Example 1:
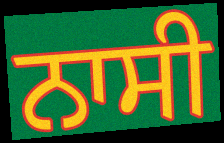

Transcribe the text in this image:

ਨਾਸੀ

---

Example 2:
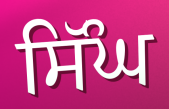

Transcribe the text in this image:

ਸਿੱੰਘ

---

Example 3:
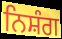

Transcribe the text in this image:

ਨਿਸ਼ੰਗ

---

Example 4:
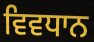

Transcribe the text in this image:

ਵਿਵਧਾਨ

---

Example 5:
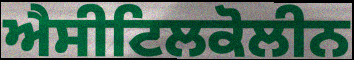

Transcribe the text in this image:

ਐਸੀਟਿਲਕੋਲੀਨ